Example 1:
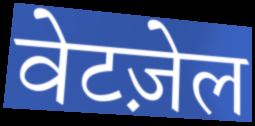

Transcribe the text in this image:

वेटज़ेल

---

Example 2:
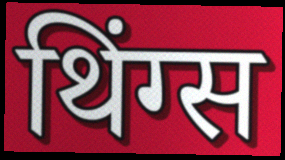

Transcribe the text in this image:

थिंग्स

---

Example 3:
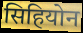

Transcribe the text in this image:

सिहियोन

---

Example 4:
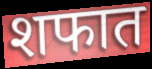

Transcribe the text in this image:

शफात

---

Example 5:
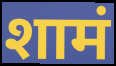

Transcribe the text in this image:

शामं